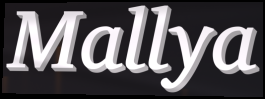
Mallya